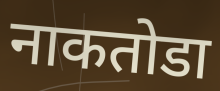
नाकतोडा